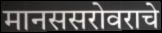
मानससरोवराचे